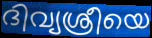
ദിവ്യശ്രീയെ